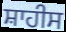
ਸ਼ਾਹੀਸ